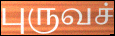
புருவச்